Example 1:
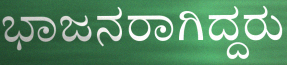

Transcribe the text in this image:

ಭಾಜನರಾಗಿದ್ದರು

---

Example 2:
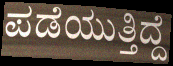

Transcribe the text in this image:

ಪಡೆಯುತ್ತಿದ್ದೆ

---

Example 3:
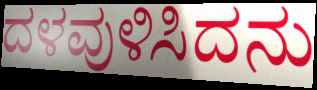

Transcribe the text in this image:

ದಳವುಳಿಸಿದನು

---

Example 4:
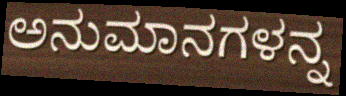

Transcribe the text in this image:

ಅನುಮಾನಗಳನ್ನ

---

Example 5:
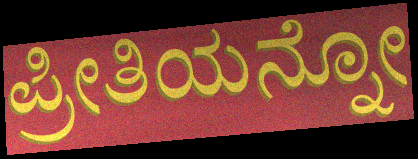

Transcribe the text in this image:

ಪ್ರೀತಿಯನ್ನೋ